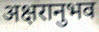
अक्षरानुभव